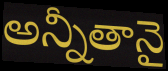
అన్నీతానై